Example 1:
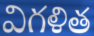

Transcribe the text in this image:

విగళిత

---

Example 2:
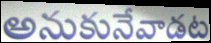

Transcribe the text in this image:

అనుకునేవాడట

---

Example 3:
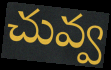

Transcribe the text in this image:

చువ్వ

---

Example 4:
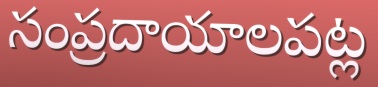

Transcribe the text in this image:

సంప్రదాయాలపట్ల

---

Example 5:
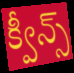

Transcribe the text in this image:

క్వీన్స్